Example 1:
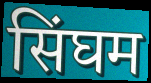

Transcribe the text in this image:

सिंघम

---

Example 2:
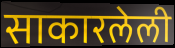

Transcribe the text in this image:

साकारलेली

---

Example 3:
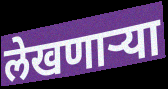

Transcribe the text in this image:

लेखणाऱ्या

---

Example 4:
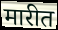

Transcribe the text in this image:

मारीत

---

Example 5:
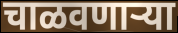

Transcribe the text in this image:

चाळवणाऱ्या